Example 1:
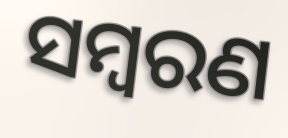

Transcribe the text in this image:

ସମ୍ଵରଣ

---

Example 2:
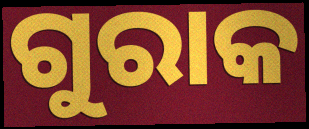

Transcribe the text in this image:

ଗୁରାକ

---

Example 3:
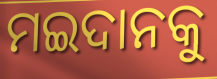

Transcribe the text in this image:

ମଇଦାନକୁ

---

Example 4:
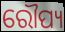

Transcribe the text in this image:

ରୌପ୍ୟ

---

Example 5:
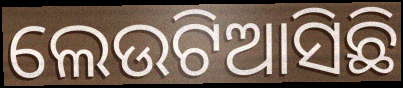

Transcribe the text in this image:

ଲେଉଟିଆସିଛି